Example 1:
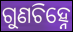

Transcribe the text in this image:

ଗୁଣଚିହ୍ନେ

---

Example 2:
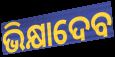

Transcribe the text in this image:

ଭିକ୍ଷାଦେବ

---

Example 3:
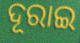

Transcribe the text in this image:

ଦୂରାଇ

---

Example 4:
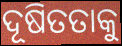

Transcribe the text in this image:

ଦୂଷିତତାକୁ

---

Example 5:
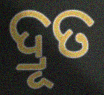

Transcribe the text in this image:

ଦ୍ରୂତ